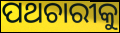
ପଥଚାରୀକୁ